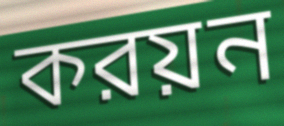
করয়ন